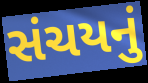
સંચયનું